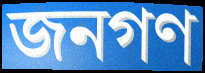
জনগণ